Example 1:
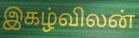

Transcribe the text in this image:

இகழ்விலன்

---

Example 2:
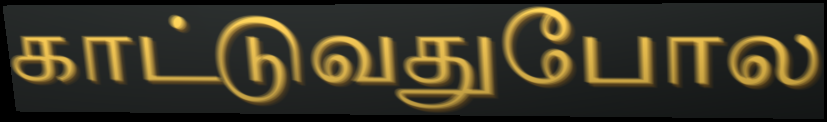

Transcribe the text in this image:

காட்டுவதுபோல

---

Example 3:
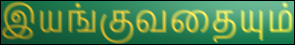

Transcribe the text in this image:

இயங்குவதையும்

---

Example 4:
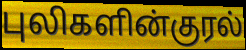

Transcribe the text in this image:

புலிகளின்குரல்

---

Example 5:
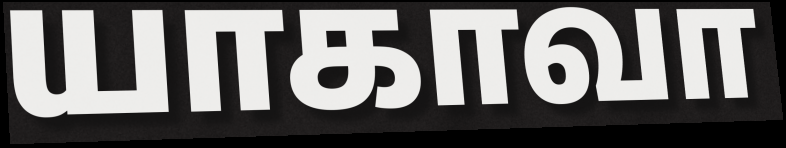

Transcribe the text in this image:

யாகாவா